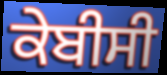
ਕੇਬੀਸੀ